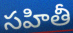
సహితీ